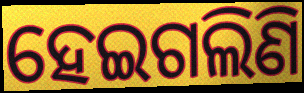
ହେଇଗଲିଣି